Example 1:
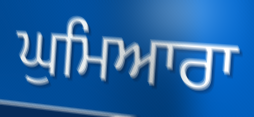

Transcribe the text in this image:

ਘੁਮਿਆਰਾ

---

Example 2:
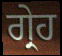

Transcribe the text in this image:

ਗ੍ਰੇਹ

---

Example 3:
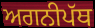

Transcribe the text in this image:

ਅਗਨੀਪੱਥ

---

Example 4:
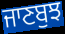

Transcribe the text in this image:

ਜਾਣਬੁਝ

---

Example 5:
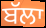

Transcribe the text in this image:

ਬੱਲਾ